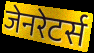
जेनरेटर्स